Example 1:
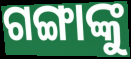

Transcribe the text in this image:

ଗଙ୍ଗାଙ୍କୁ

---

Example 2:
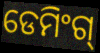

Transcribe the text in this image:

ଡେମିଂଗ୍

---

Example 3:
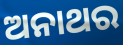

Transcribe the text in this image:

ଅନାଥର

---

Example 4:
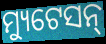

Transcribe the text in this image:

ମ୍ୟୁଟେସନ୍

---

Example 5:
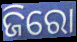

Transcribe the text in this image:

ଜିରୋ